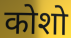
कोशो